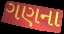
ગણના